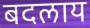
बदलाय